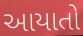
આયાતો